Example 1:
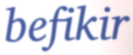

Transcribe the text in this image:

befikir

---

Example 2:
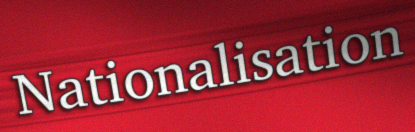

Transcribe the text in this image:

Nationalisation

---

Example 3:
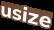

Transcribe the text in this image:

usize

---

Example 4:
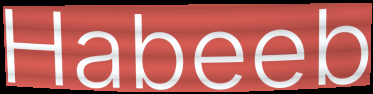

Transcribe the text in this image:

Habeeb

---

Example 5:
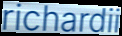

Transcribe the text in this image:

richardii